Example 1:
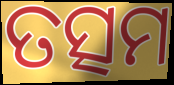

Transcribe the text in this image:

ତତ୍ସମ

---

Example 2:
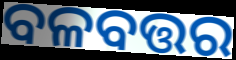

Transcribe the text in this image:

ବଳବତ୍ତର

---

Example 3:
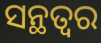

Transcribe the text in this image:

ସନ୍ଥତ୍ବର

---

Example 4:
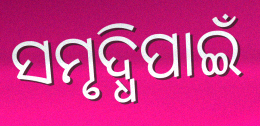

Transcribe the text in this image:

ସମୃଦ୍ଧିପାଇଁ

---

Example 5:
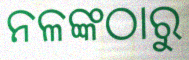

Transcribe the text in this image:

ନଳଙ୍କଠାରୁ